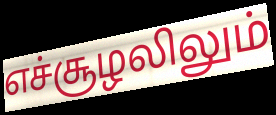
எச்சூழலிலும்